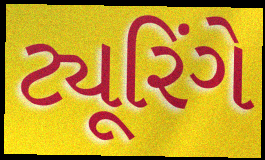
ટ્યૂરિંગે